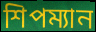
শিপম্যান